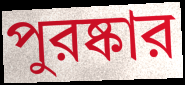
পুরষ্কার